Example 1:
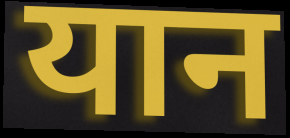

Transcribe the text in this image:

यान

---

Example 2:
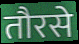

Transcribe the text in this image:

तौरसे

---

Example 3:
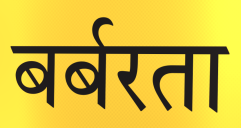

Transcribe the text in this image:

बर्बरता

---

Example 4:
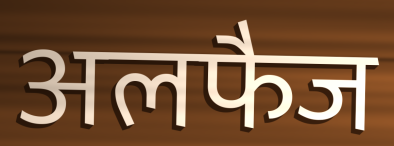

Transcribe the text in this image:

अलफैज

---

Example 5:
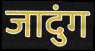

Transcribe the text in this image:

जादुंग